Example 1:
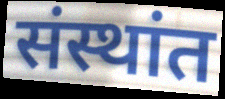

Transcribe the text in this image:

संस्थांत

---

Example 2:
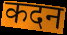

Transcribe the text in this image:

कदन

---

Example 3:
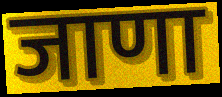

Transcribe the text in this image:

जाणा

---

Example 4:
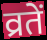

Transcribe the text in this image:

व्रतें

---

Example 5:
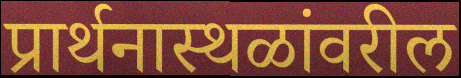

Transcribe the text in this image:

प्रार्थनास्थळांवरील